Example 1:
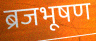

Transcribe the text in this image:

ब्रजभूषण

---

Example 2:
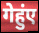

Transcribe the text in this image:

गेहुंए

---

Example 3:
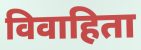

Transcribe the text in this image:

विवाहिता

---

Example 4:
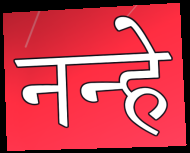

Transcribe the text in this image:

नन्हे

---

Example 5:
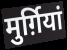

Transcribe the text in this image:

मुर्ग़ियां